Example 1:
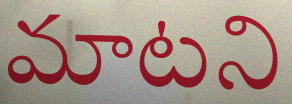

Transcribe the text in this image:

మాటని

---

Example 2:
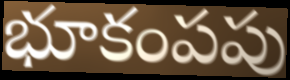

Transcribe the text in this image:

భూకంపపు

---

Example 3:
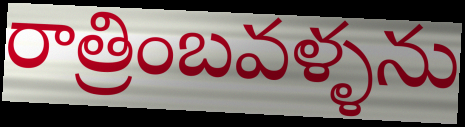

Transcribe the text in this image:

రాత్రింబవళ్ళను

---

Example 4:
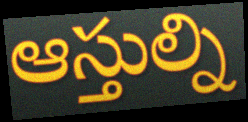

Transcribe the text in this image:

ఆస్తుల్ని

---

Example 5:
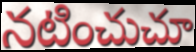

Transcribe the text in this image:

నటించుచూ